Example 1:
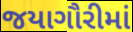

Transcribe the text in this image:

જયાગૌરીમાં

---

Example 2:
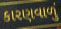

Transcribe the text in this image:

કારણવાળું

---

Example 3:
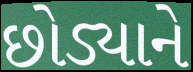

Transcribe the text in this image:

છોડ્યાને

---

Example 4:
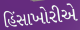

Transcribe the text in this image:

હિંસાખોરીએ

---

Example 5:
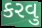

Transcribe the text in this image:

કરવુ